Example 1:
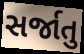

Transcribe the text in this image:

સર્જાતુ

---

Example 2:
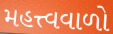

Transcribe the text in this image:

મહત્ત્વવાળો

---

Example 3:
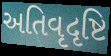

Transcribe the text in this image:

અતિવૃદૃષ્ટિ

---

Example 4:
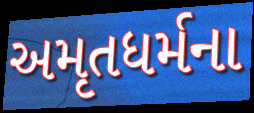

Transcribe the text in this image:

અમૃતધર્મના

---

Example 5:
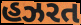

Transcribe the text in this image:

હઝરત